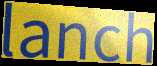
lanch